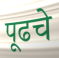
पूढचे